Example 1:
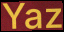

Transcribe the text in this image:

Yaz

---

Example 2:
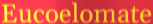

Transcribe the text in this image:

Eucoelomate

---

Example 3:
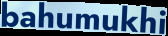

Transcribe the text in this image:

bahumukhi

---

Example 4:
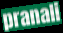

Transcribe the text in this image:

pranali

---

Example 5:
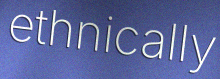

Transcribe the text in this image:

ethnically